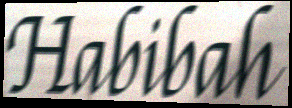
Habibah